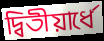
দ্বিতীয়ার্ধে